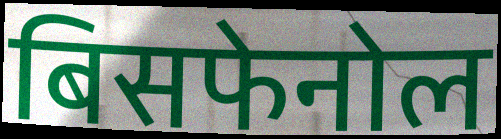
बिसफेनोल